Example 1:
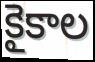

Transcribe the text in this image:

కైకాల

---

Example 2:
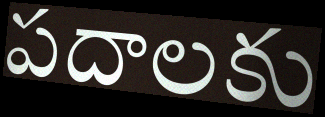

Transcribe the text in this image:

పదాలకు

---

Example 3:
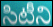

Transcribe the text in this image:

సిటీని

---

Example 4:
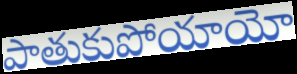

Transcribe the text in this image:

పాతుకుపోయాయో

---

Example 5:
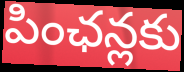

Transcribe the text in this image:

పింఛన్లకు